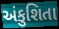
અંકુશિતા